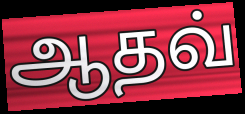
ஆதவ்